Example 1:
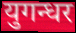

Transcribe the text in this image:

युगन्धर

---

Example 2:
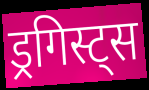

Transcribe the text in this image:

ड्रगिस्ट्स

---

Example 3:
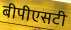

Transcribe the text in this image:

बीपीएसटी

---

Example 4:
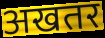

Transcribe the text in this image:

अखतर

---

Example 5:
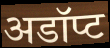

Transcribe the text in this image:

अडॉप्‍ट